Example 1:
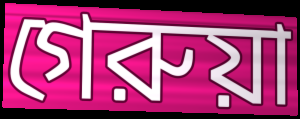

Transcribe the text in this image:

গেরুয়া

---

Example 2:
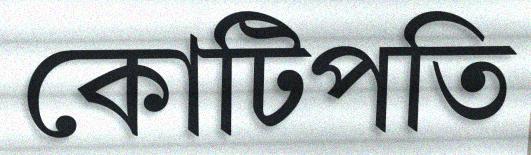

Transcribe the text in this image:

কোটিপতি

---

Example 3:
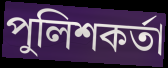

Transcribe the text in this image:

পুলিশকর্তা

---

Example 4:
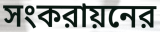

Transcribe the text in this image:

সংকরায়নের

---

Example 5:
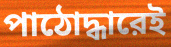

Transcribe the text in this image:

পাঠোদ্ধারেই